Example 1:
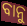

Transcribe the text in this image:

ବାନୁ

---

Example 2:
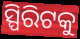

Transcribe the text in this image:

ସ୍ପିରିଟକୁ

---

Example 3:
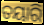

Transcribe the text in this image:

ତୟାରି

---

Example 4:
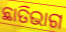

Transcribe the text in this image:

ଛାତିଭାଗ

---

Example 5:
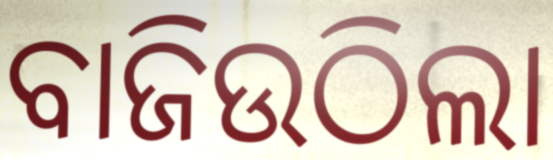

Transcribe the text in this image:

ବାଜିଉଠିଲା